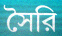
সৈরি